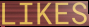
LIKES